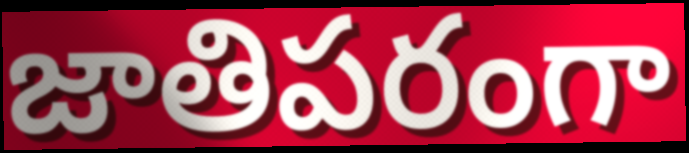
జాతిపరంగా